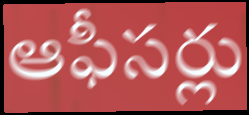
ఆఫీసర్లు